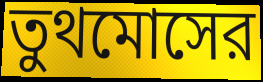
তুথমোসের